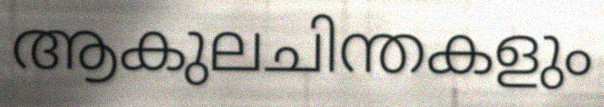
ആകുലചിന്തകളും